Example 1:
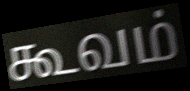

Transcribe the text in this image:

கூவம்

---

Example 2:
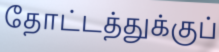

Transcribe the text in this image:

தோட்டத்துக்குப்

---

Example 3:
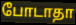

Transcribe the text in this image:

போடாதா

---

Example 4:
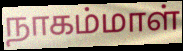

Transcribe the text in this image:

நாகம்மாள்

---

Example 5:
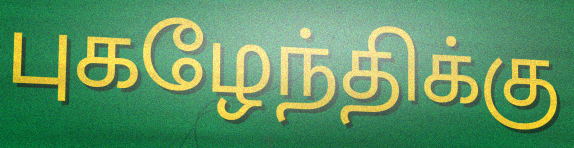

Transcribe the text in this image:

புகழேந்திக்கு